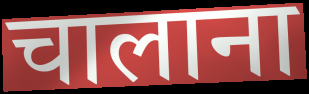
चालाना